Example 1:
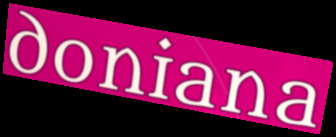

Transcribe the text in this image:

doniana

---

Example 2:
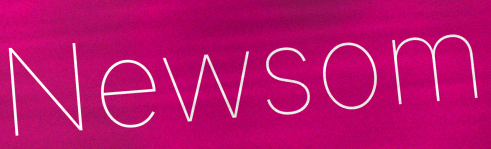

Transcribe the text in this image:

Newsom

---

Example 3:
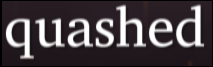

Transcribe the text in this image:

quashed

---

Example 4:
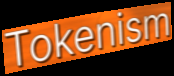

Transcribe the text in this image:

Tokenism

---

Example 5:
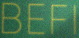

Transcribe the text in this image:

BEFI